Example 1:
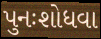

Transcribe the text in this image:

પુનઃશોધવા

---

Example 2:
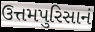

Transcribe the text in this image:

ઉત્તમપુરિસાનં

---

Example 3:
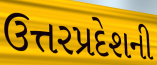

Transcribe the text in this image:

ઉત્તરપ્રદેશની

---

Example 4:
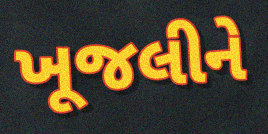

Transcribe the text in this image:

ખૂજલીને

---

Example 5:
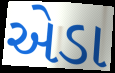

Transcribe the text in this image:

એડા